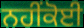
ਨਹੀਂਕੋਈ